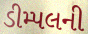
ડીમ્પલની